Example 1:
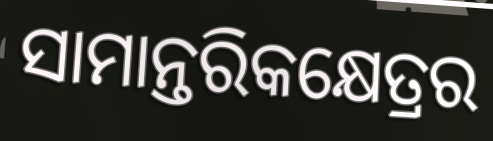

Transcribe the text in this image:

ସାମାନ୍ତରିକକ୍ଷେତ୍ରର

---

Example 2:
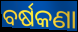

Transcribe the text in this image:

ବର୍ଷକଣା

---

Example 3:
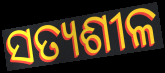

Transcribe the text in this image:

ସତ୍ୟଶୀଳ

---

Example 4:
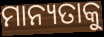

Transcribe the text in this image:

ମାନ୍ୟତାକୁ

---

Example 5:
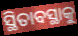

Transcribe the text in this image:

ସ୍ଥିତାବସ୍ଥାକୁ